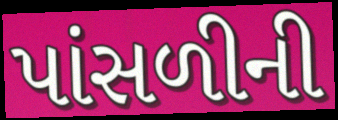
પાંસળીની